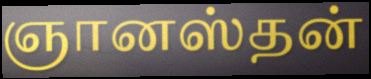
ஞானஸ்தன்